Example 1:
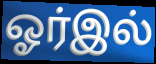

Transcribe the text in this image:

ஓர்இல்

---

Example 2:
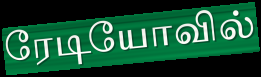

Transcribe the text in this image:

ரேடியோவில்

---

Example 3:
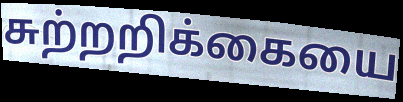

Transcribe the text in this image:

சுற்றறிக்கையை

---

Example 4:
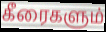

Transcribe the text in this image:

கீரைகளும்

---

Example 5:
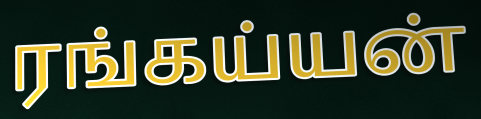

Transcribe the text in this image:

ரங்கய்யன்